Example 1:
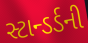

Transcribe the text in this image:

સ્ટાન્ડર્ડની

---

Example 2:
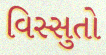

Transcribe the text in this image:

વિસ્સુતો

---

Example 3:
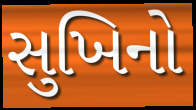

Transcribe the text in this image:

સુખિનો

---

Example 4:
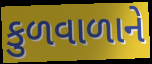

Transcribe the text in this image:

કુળવાળાને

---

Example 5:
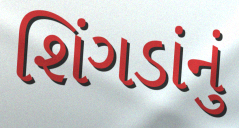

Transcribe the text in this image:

શિંગડાંનું